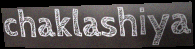
chaklashiya